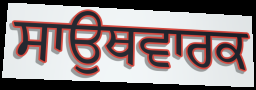
ਸਾਉਥਵਾਰਕ